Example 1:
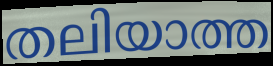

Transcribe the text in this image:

തലിയാത്ത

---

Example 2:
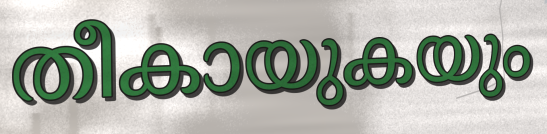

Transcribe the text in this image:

തീകായുകയും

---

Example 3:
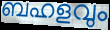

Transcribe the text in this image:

ബഹളവും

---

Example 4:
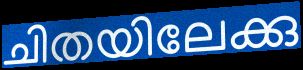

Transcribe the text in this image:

ചിതയിലേക്കു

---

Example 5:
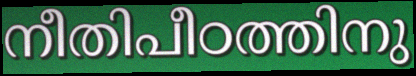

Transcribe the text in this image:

നീതിപീഠത്തിനു